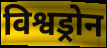
विश्वड्रोन